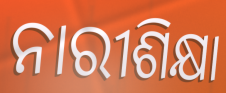
ନାରୀଶିକ୍ଷା